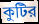
কুটির